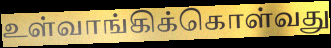
உள்வாங்கிக்கொள்வது